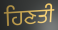
ਹਿਣਤੀ